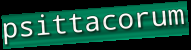
psittacorum